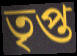
তৃপ্ত